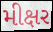
મીક્ષર